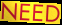
NEED